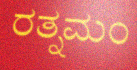
ರತ್ನಮಂ